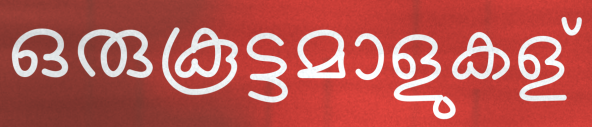
ഒരുകൂട്ടമാളുകള്